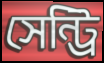
সেন্ট্রি